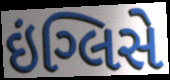
ઇંગ્લિસે